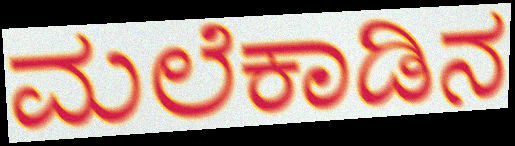
ಮಲೆಕಾಡಿನ